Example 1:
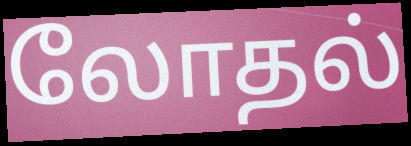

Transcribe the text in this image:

லோதல்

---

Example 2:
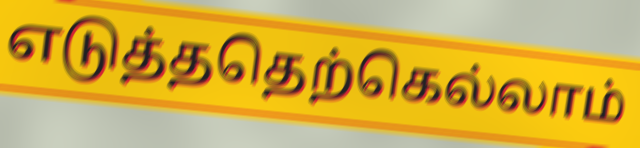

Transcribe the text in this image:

எடுத்ததெற்கெல்லாம்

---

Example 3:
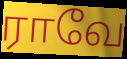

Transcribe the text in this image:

ராவே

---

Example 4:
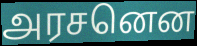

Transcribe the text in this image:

அரசனென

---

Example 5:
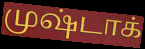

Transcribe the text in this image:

முஷ்டாக்